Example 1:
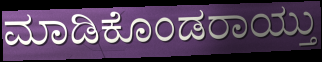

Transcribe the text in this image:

ಮಾಡಿಕೊಂಡರಾಯ್ತು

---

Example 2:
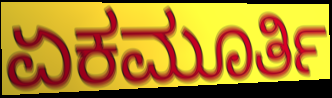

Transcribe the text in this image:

ಏಕಮೂರ್ತಿ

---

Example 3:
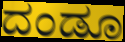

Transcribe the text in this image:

ದಂಡೂ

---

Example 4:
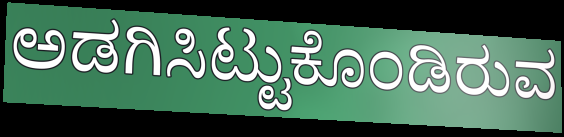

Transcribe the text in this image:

ಅಡಗಿಸಿಟ್ಟುಕೊಂಡಿರುವ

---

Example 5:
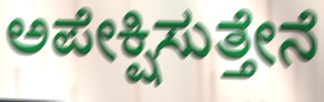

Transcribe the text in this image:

ಅಪೇಕ್ಷಿಸುತ್ತೇನೆ